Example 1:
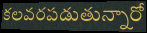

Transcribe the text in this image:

కలవరపడుతున్నారో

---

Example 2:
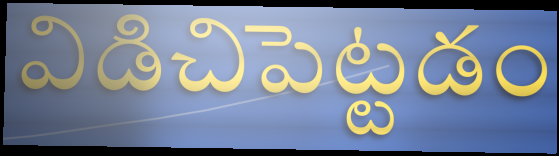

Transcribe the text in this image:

విడిచిపెట్టడం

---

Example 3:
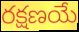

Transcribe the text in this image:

రక్షణయే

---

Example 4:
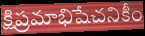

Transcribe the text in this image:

క్షిప్రమాభిషేచనికీం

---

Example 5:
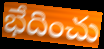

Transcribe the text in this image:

భేదించు